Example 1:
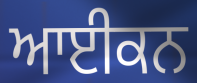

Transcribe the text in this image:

ਆਈਕਨ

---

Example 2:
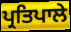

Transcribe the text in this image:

ਪ੍ਰਤਿਪਾਲੇ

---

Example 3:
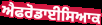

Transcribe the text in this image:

ਐਫਰੋਡਾਈਸਿਆਕ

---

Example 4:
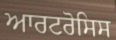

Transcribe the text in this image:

ਆਰਟਰੋਸਿਸ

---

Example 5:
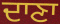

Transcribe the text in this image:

ਦਾਣਾ